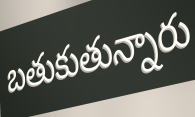
బతుకుతున్నారు